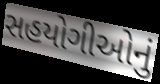
સહયોગીઓનું